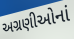
અગ્રણીઓનાં